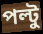
পল্টু